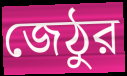
জেঠুর